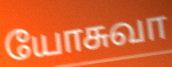
யோசுவா